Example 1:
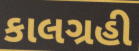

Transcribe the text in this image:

કાલગ્રહી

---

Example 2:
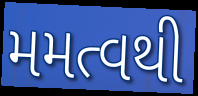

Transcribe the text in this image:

મમત્વથી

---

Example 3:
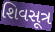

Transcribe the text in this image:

શિવસૂત્ર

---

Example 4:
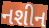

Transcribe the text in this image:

નશીન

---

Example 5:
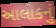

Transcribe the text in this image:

આલોકનું